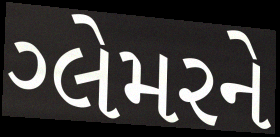
ગ્લેમરને